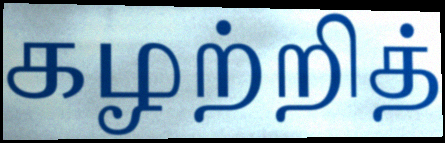
கழற்றித்